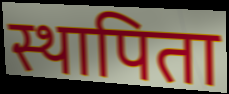
स्थापिता